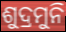
ଶୁଦ୍ରମୁନି